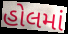
હોલમાં